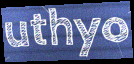
uthyo